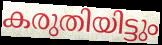
കരുതിയിട്ടും